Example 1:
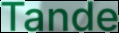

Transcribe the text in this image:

Tande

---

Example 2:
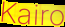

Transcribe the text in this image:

Kairo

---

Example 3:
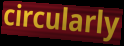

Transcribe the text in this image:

circularly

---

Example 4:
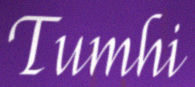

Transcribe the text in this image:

Tumhi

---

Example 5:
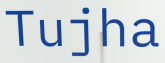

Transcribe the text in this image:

Tujha